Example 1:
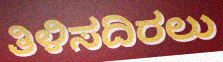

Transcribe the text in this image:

ತಿಳಿಸದಿರಲು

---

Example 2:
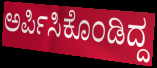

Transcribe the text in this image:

ಅರ್ಪಿಸಿಕೊಂಡಿದ್ದ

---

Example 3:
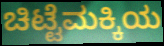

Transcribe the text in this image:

ಚಿಟ್ಟೆಮಕ್ಕಿಯ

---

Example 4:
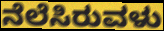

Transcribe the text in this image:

ನೆಲೆಸಿರುವಳು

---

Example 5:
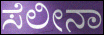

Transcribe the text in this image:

ಸೆಲೀನಾ